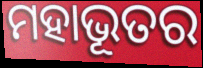
ମହାଭୂତର